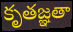
కృతజ్ఞతా